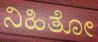
ನಿಹಿತೋ